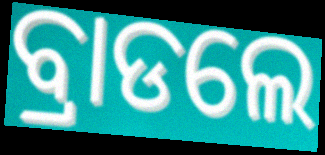
ବ୍ରାଡଲେ